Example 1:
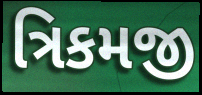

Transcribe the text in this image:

ત્રિકમજી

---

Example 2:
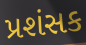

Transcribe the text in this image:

પ્રશંસક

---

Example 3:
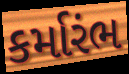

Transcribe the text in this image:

કર્મારંભ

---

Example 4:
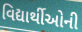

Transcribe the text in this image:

વિદ્યાર્થીઓની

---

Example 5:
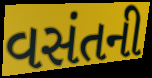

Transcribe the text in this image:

વસંતની